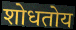
शोधतोय